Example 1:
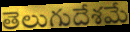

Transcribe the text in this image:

తెలుగుదేశమే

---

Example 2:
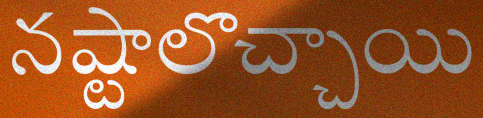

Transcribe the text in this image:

నష్టాలొచ్చాయి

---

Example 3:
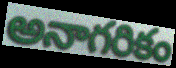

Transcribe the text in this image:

అనాగరికం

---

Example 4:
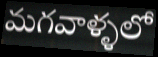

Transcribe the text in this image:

మగవాళ్ళలో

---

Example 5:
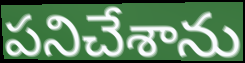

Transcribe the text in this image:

పనిచేశాను